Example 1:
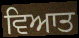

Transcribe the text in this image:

ਵਿਆਤ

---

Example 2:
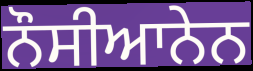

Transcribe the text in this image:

ਨੌਸੀਆਨੇਨ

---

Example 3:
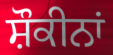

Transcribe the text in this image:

ਸ਼ੌਕੀਨਾਂ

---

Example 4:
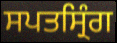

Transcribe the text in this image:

ਸਪਤਸ੍ਰਿੰਗ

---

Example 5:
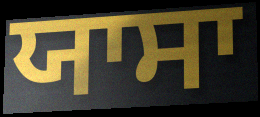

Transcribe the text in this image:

ਯਾਸਾ